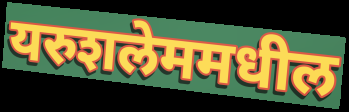
यरुशलेममधील